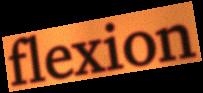
flexion